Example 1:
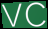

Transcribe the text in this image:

vc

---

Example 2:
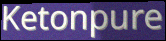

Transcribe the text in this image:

Ketonpure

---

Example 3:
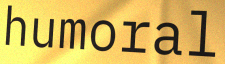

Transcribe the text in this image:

humoral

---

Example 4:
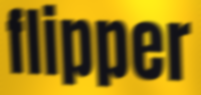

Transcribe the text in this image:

flipper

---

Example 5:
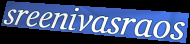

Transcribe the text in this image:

sreenivasraos